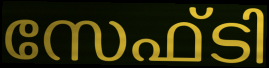
സേഫ്ടി